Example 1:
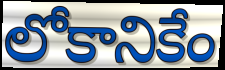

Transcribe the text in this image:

లోకానికేం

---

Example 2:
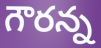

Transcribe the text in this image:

గౌరన్న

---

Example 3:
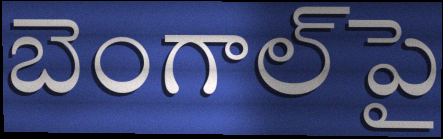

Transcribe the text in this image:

బెంగాల్‌పై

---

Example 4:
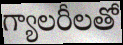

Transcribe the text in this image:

గ్యాలరీలతో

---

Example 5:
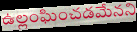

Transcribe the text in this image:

ఉల్లంఘించడమేనని